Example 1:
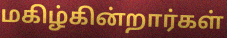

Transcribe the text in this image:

மகிழ்கின்றார்கள்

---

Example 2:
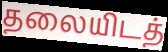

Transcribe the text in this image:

தலையிடத்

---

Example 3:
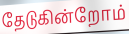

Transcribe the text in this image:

தேடுகின்றோம்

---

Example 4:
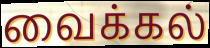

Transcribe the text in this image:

வைக்கல்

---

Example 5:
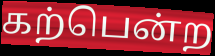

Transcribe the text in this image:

கற்பென்ற